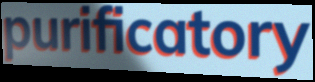
purificatory